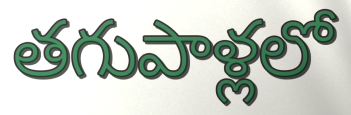
తగుపాళ్లలో